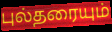
புல்தரையும்